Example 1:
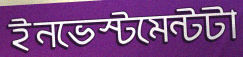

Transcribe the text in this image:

ইনভেস্টমেন্টটা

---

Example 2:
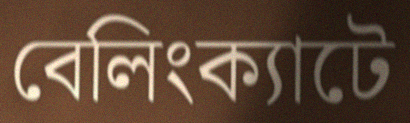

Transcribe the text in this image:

বেলিংক্যাটে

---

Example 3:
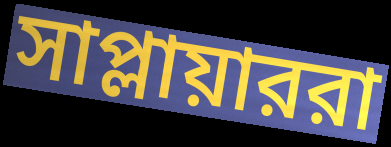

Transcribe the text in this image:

সাপ্লায়াররা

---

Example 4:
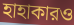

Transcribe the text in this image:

হাহাকারও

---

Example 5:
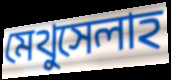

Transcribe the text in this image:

মেথুসেলাহ